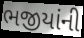
ભજીયાંની